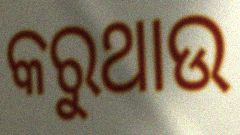
କରୁଥାଉ